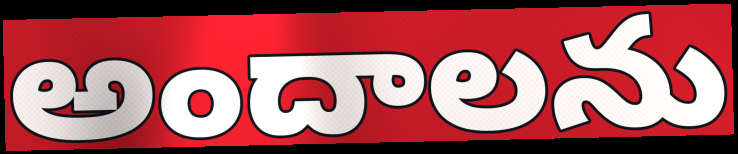
అందాలను